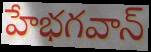
హేభగవాన్